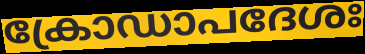
ക്രോഡാപദേശഃ